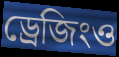
ড্রেজিংও